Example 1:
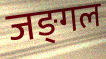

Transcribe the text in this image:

जङ्गल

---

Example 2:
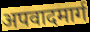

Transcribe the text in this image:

अपवादमार्ग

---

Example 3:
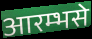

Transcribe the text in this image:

आरम्भसे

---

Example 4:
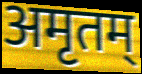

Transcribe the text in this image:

अमृतम्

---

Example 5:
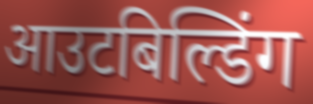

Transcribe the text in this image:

आउटबिल्डिंग